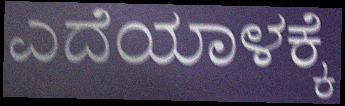
ಎದೆಯಾಳಕ್ಕೆ